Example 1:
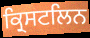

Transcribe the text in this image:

ਕ੍ਰਿਸਟਲਿਨ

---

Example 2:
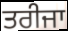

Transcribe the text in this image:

ਤਰੀਜਾ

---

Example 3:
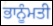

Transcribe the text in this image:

ਭਾਨੂੰਮਤੀ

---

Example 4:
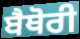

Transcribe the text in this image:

ਬੈਥੋਰੀ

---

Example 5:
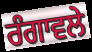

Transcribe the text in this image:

ਰੰਗਾਵਲੇ